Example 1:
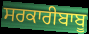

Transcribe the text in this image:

ਸਰਕਾਰੀਬਾਬੂ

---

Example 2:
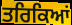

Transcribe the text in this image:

ਤਰਿਕਿਆਂ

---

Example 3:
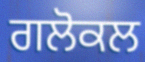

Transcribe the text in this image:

ਗਲੋਕਲ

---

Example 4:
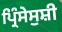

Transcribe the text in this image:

ਪ੍ਰਿੰਸੇਸੁਸ਼ੀ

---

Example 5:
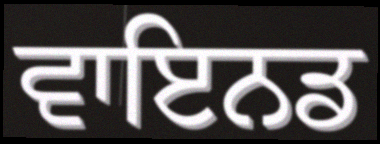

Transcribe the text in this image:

ਵਾਇਨਡ